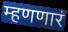
म्हणणारं